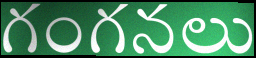
గంగనలు